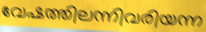
വേഷത്തിലന്നിവരിയന്ന